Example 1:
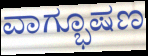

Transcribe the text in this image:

ವಾಗ್ಭೂಷಣ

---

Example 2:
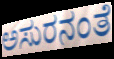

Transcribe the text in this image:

ಅಸುರನಂತೆ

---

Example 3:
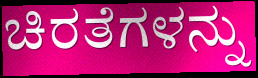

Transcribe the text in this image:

ಚಿರತೆಗಳನ್ನು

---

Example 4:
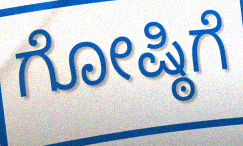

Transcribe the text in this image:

ಗೋಷ್ಠಿಗೆ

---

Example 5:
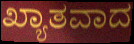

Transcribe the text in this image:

ಖ್ಯಾತವಾದ